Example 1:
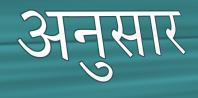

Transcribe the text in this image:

अनुसार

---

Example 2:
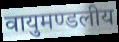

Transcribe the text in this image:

वायुमण्डलीय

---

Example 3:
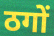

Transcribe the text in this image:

ठगों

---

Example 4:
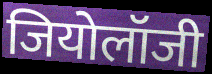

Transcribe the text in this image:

जियोलॉजी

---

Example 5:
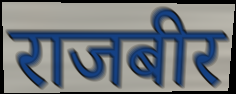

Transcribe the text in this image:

राजबीर